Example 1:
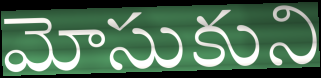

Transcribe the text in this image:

మోసుకుని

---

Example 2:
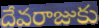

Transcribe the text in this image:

దేవరాజుకు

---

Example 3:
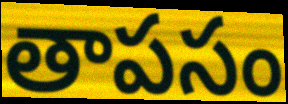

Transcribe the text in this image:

తాపసం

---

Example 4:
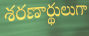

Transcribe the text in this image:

శరణార్థులుగా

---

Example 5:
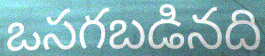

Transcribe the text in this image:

ఒసగబడినది